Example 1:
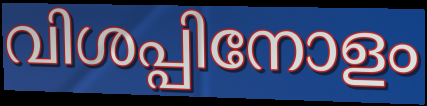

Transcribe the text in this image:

വിശപ്പിനോളം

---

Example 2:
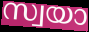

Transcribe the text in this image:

സ്വയാ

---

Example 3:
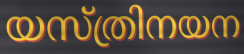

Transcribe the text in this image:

യസ്ത്രിനയന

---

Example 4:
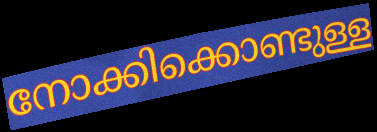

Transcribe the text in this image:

നോക്കിക്കൊണ്ടുള്ള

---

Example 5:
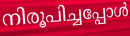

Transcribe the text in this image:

നിരൂപിച്ചപ്പോൾ